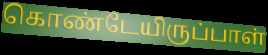
கொண்டேயிருப்பாள்